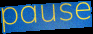
pause